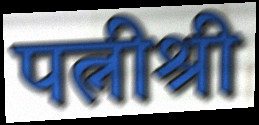
पत्नीश्री